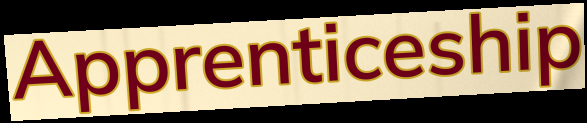
Apprenticeship